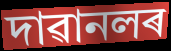
দাৱানলৰ